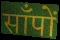
साँपों